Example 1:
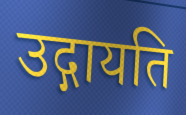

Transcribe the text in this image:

उद्गायति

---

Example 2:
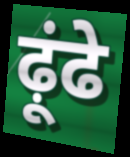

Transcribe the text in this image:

ढ़ूंढे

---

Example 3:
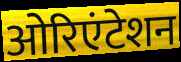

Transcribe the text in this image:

ओरिएंटेशन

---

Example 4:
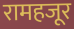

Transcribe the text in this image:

रामहजूर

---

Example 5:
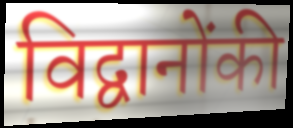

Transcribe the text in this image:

विद्वानोंकी